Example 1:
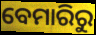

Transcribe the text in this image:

ବେମାରିରୁ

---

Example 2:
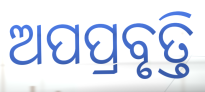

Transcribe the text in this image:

ଅପପ୍ରବୃତ୍ତି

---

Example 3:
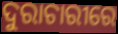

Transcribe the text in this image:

ଦୁରାଚାରୀରେ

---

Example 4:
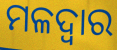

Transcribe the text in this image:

ମଳଦ୍ଵାର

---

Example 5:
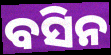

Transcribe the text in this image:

ବସିନ